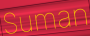
Suman